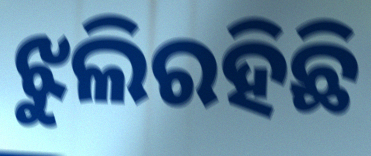
ଝୁଲିରହିଛି